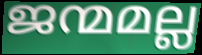
ജന്മമല്ല